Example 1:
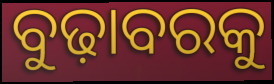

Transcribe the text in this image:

ବୁଢ଼ାବରକୁ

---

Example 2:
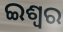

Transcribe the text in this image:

ଇଶ୍ବର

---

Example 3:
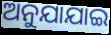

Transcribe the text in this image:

ଅନୁଯାଯାଇ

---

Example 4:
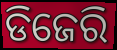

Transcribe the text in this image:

ଡିଜେରି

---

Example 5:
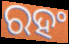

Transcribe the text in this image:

ରହଂ